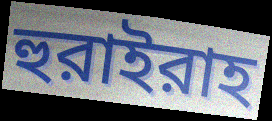
হুরাইরাহ